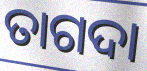
ତାଗଦା